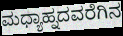
ಮಧ್ಯಾಹ್ನದವರೆಗಿನ